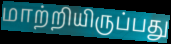
மாற்றியிருப்பது